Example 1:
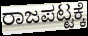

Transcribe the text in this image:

ರಾಜಪಟ್ಟಕ್ಕೆ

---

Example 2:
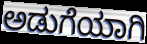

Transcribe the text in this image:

ಅಡುಗೆಯಾಗಿ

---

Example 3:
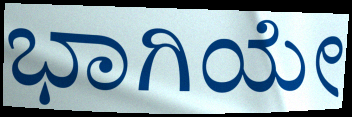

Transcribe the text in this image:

ಭಾಗಿಯೇ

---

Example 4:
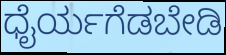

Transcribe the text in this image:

ಧೈರ್ಯಗೆಡಬೇಡಿ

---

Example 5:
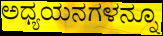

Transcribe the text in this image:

ಅಧ್ಯಯನಗಳನ್ನೂ